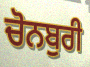
ਚੋਨਬੁਰੀ